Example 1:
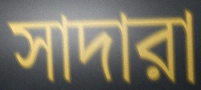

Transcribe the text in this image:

সাদারা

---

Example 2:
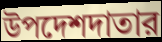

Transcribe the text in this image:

উপদেশদাতার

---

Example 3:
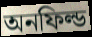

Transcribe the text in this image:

অনফিল্ড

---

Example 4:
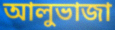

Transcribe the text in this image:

আলুভাজা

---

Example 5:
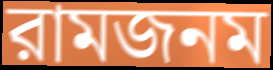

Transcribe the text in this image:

রামজনম